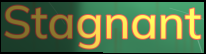
Stagnant